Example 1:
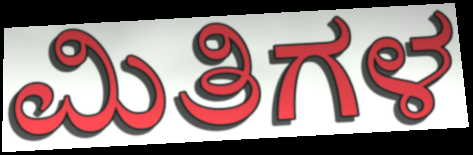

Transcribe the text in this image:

ಮಿತಿಗಳ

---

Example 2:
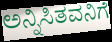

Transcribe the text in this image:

ಅನ್ನಿಸಿತವನಿಗೆ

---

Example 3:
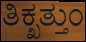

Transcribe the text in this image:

ತಿಕ್ಖತ್ತುಂ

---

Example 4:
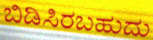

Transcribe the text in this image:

ಬಿಡಿಸಿರಬಹುದು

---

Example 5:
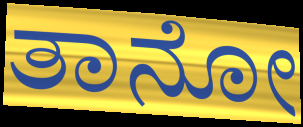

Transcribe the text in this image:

ತಾನೋ